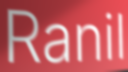
Ranil